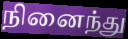
நினைந்து